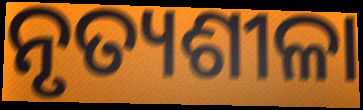
ନୃତ୍ୟଶୀଳା